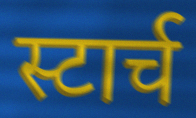
स्टार्च